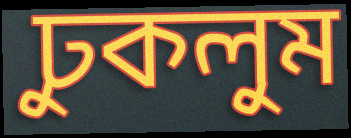
ঢুকলুম